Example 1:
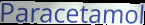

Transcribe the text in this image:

Paracetamol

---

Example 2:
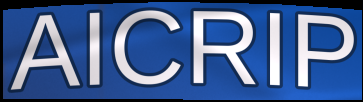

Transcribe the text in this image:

AICRIP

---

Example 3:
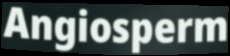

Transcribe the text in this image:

Angiosperm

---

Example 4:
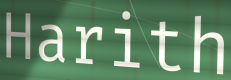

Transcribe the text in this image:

Harith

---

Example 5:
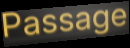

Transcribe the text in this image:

Passage